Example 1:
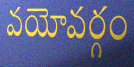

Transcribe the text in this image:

వయోవర్గం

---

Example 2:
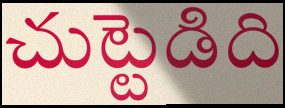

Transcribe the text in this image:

చుట్టెడిది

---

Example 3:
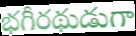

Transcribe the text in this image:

భగీరథుడుగా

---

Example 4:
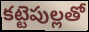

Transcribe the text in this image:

కట్టెపుల్లతో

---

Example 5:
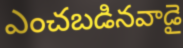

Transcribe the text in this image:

ఎంచబడినవాడై